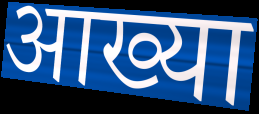
आख्या